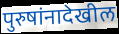
पुरुषांनादेखील